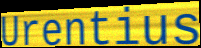
Urentius